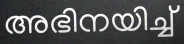
അഭിനയിച്ച്